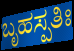
ಬೃಹಸ್ಪತಿಃ